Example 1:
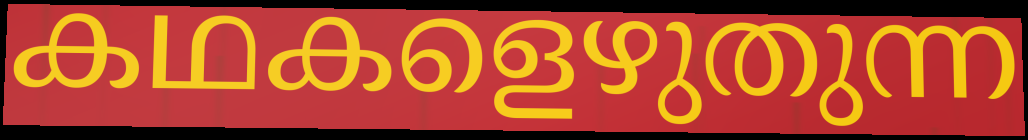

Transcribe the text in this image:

കഥകളെഴുതുന്ന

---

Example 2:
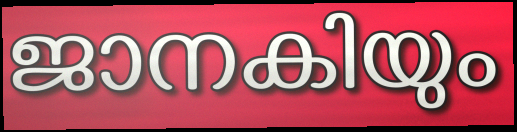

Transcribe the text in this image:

ജാനകിയും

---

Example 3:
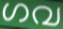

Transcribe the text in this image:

ഗവ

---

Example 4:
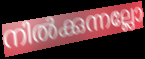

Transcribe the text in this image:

നിൽക്കുന്നല്ലോ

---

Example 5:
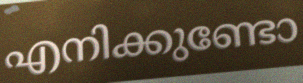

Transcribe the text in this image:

എനിക്കുണ്ടോ